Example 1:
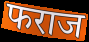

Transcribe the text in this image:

फराज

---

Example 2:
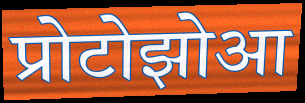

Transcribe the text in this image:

प्रोटोझोआ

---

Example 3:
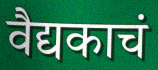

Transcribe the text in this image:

वैद्यकाचं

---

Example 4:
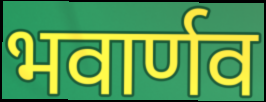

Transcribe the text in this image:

भवार्णव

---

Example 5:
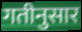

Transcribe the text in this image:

गतीनुसार